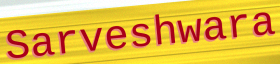
Sarveshwara